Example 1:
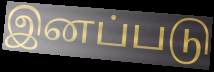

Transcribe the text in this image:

இனப்படு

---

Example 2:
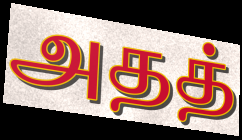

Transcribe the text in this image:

அதத்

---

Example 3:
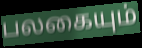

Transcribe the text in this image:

பலகையும்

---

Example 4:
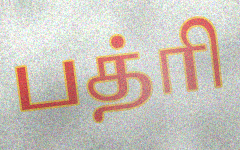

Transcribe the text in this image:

பத்ரி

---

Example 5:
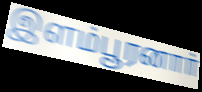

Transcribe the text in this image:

இளம்பூரனார்